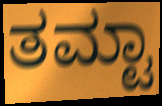
ತಮ್ಟಾ